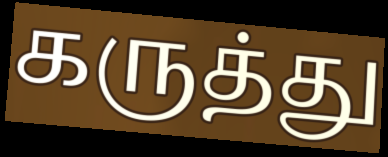
கருத்து